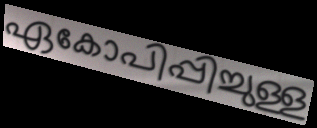
ഏകോപിപ്പിച്ചുള്ള